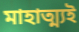
মাহাত্ম্যই